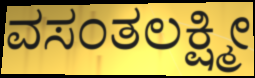
ವಸಂತಲಕ್ಷ್ಮೀ